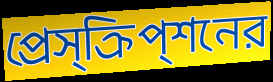
প্রেস্‌ক্রিপ্‌শনের